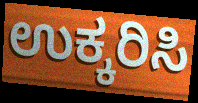
ಉಕ್ಕರಿಸಿ